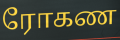
ரோகண